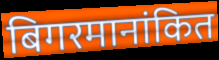
बिगरमानांकित